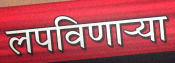
लपविणाऱ्या